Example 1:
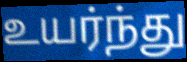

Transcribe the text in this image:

உயர்ந்து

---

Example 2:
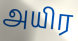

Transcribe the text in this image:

அயிர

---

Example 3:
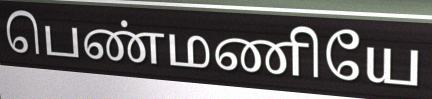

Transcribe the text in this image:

பெண்மணியே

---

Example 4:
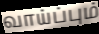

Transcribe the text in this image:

வாய்ப்பும்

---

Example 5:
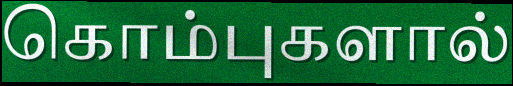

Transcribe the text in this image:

கொம்புகளால்